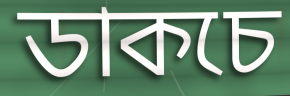
ডাকচে